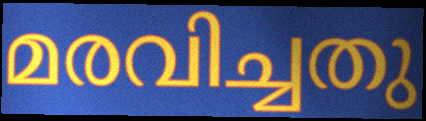
മരവിച്ചതു